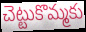
చెట్టుకొమ్మకు